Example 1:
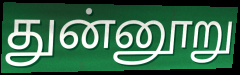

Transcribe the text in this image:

துன்னூறு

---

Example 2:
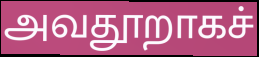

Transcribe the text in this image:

அவதூறாகச்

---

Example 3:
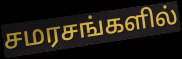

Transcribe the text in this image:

சமரசங்களில்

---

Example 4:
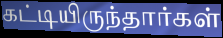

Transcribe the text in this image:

கட்டியிருந்தார்கள்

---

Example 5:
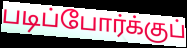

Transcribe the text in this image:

படிப்போர்க்குப்